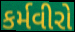
કર્મવીરો